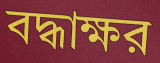
বদ্ধাক্ষর